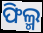
ଫିଲ୍ମ